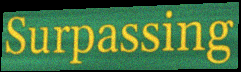
Surpassing